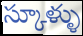
స్కూళ్ళు